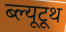
ब्ल्यूटूथ